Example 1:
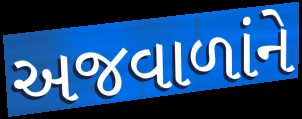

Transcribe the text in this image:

અજવાળાંને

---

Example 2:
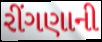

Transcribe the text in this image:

રીંગણાની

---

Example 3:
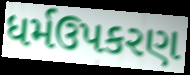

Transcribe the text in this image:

ધર્મઉપકરણ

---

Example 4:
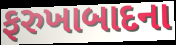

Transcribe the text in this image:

ફરુખાબાદના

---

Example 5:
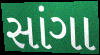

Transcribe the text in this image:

સાંગા